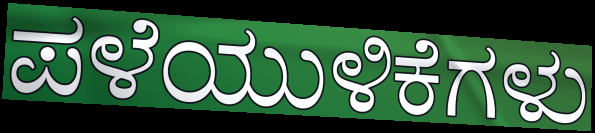
ಪಳೆಯುಳಿಕೆಗಳು